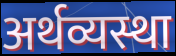
अर्थव्यस्था